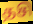
தசி